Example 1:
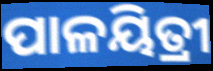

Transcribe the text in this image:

ପାଳୟିତ୍ରୀ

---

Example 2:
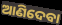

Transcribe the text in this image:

ଆଣିଦେବା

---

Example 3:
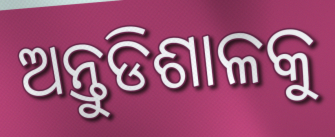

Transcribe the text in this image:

ଅନ୍ତୁଡିଶାଳକୁ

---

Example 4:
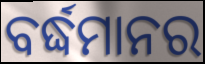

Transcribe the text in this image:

ବର୍ଦ୍ଧମାନର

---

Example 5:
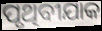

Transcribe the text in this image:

ପୃଥିବୀଯାକ